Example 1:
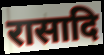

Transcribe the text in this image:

रासादि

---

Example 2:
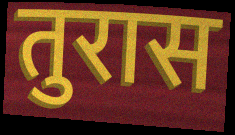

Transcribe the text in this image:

तुरास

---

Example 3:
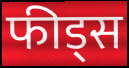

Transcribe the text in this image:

फीड्स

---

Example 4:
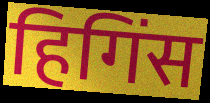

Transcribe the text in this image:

हिगिंस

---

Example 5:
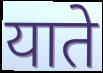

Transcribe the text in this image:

याते